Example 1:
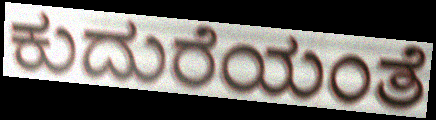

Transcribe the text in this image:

ಕುದುರೆಯಂತೆ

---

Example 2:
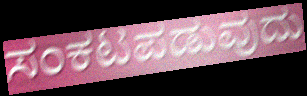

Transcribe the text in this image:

ಸಂಕಟಪಡುವುದು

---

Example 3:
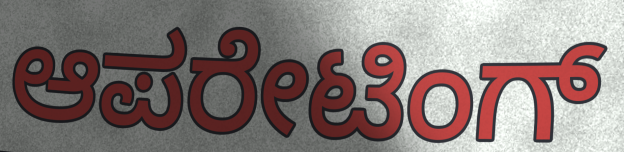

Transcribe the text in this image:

ಆಪರೇಟಿಂಗ್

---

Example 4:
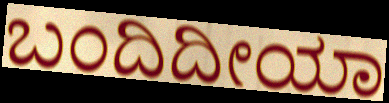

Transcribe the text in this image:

ಬಂದಿದೀಯಾ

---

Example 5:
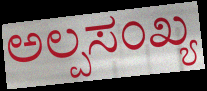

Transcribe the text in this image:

ಅಲ್ಪಸಂಖ್ಯ